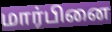
மார்பினை